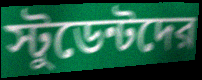
স্টুডেন্টদের